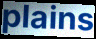
plains